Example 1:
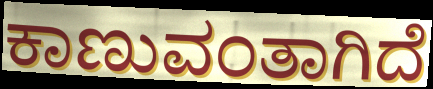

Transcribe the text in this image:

ಕಾಣುವಂತಾಗಿದೆ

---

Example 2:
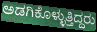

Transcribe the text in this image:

ಅಡಗಿಕೊಳ್ಳುತ್ತಿದ್ದರು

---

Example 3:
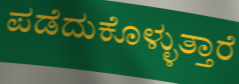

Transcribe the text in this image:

ಪಡೆದುಕೊಳ್ಳುತ್ತಾರೆ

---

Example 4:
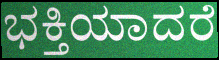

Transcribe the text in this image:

ಭಕ್ತಿಯಾದರೆ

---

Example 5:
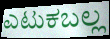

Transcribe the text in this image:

ಎಟುಕಬಲ್ಲ